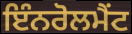
ਇੰਨਰੋਲਮੈਂਟ